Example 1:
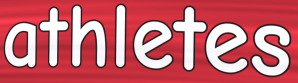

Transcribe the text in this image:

athletes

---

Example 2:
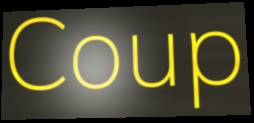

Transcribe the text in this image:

Coup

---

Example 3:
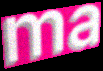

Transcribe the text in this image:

ma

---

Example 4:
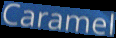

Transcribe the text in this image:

Caramel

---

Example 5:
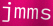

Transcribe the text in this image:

jmms